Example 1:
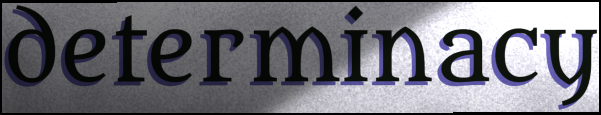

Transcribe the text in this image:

determinacy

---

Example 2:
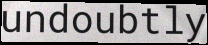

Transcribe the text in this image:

undoubtly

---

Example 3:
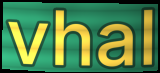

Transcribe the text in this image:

vhal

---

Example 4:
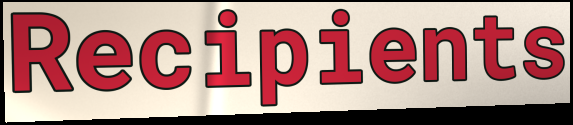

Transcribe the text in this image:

Recipients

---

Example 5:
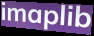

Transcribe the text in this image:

imaplib